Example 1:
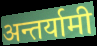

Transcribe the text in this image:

अन्तर्यामी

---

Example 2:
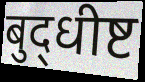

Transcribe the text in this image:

बुद्धीष्ट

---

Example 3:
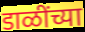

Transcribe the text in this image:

डाळींच्या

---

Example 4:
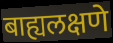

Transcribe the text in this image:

बाह्यलक्षणे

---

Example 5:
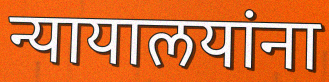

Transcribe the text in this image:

न्यायालयांना